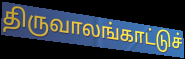
திருவாலங்காட்டுச்